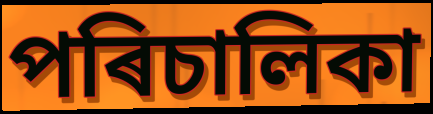
পৰিচালিকা